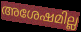
അശേഷമില്ല